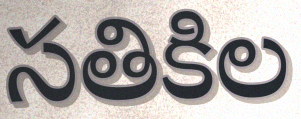
సతికిల